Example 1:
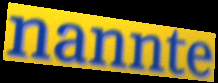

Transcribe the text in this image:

nannte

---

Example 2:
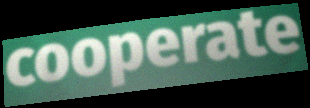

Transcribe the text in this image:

cooperate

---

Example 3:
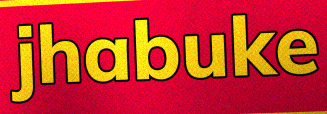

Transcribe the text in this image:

jhabuke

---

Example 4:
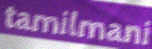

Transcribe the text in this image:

tamilmani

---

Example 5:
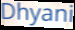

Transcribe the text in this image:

Dhyani